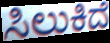
ಸಿಲುಕಿದೆ